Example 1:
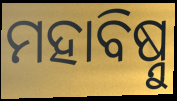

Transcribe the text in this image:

ମହାବିଷ୍ନୁ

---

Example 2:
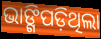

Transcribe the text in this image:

ଭାଙ୍ଗିପଡ଼ିଥିଲା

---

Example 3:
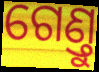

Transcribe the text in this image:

ଗେଣ୍ତୁ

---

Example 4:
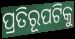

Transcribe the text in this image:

ପ୍ରତିରୂପଟିକୁ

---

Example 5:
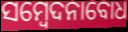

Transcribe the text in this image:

ସମ୍ବେଦନାବୋଧ